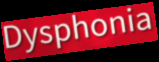
Dysphonia